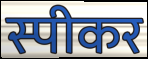
स्‍पीकर